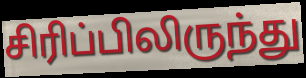
சிரிப்பிலிருந்து